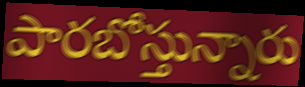
పారబోస్తున్నారు